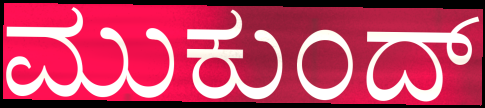
ಮುಕುಂದ್